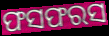
ଫସଫରସ